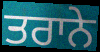
ਤਰਾਨੇ